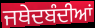
ਜਥੇਦਬੰਦੀਆਂ